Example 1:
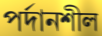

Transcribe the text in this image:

পর্দানশীল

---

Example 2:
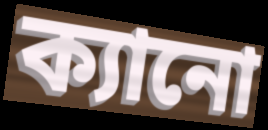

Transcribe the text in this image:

ক্যানো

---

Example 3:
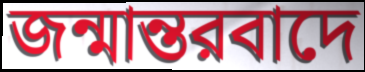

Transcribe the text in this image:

জন্মান্তরবাদে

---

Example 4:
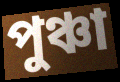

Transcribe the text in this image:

পুঞ্চা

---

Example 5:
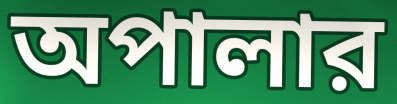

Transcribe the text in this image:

অপালার